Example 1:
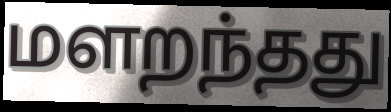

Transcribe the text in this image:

மளறந்தது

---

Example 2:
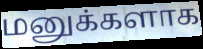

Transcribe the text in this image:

மனுக்களாக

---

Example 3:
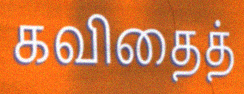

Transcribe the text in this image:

கவிதைத்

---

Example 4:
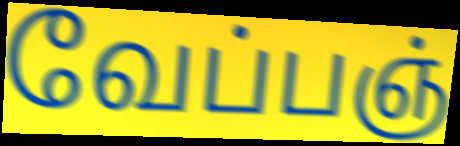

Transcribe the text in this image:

வேப்பஞ்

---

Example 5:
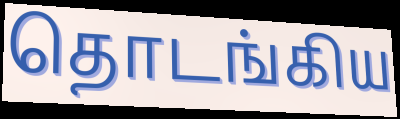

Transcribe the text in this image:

தொடங்கிய